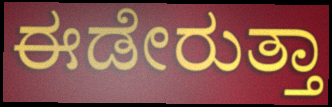
ಈಡೇರುತ್ತಾ